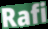
Rafi